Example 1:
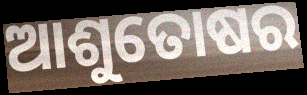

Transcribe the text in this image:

ଆଶୁତୋଷର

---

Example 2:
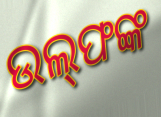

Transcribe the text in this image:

ଉଲ୍‌ଫଙ୍କ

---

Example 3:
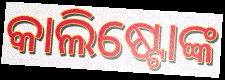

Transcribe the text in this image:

କାଲିଷ୍ଟୋଙ୍କ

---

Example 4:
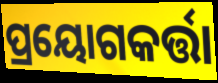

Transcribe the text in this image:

ପ୍ରୟୋଗକର୍ତ୍ତା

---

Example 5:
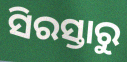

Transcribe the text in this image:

ସିରସ୍ତାରୁ